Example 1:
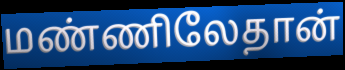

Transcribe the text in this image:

மண்ணிலேதான்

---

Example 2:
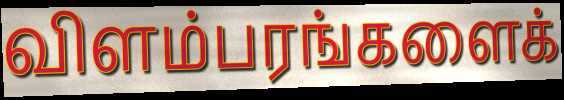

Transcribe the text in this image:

விளம்பரங்களைக்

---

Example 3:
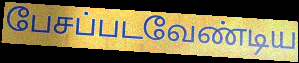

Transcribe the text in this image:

பேசப்படவேண்டிய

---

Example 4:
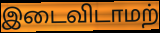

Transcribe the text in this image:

இடைவிடாமற்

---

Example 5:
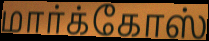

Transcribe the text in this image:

மார்க்கோஸ்